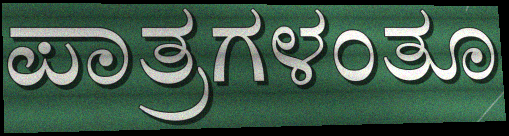
ಪಾತ್ರಗಳಂತೂ